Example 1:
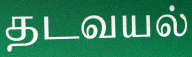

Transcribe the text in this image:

தடவயல்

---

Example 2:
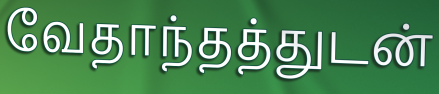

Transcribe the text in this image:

வேதாந்தத்துடன்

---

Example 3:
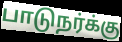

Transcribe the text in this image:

பாடுநர்க்கு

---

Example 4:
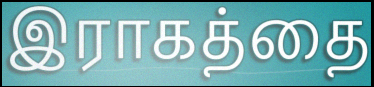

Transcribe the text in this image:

இராகத்தை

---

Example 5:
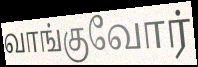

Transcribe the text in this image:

வாங்குவோர்